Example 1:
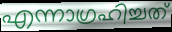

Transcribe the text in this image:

എന്നാഗ്രഹിച്ചത്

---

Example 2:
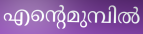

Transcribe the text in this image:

എന്റെമുമ്പിൽ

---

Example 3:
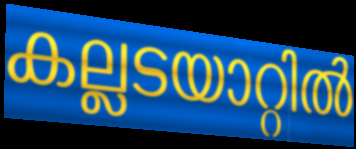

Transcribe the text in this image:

കല്ലടയാറ്റിൽ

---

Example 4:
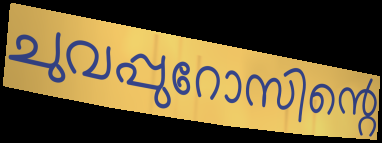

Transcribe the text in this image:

ചുവപ്പുറോസിന്റെ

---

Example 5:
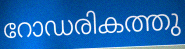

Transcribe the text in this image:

റോഡരികത്തു